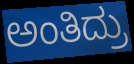
ಅಂತಿದ್ರು